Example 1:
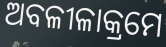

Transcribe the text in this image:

ଅବଳୀଳାକ୍ରମେ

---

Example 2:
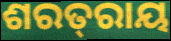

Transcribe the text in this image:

ଶରତ୍‌ରାୟ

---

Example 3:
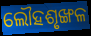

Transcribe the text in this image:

ଲୌହଶୃଙ୍ଖଳ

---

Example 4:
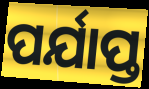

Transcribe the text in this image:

ପର୍ଯାପ୍ତ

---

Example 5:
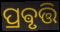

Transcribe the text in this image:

ପ୍ରଵୃତ୍ତି